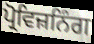
ਪ੍ਰੋਵਿਜ਼ਨਿੰਗ